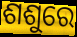
ଶଶୁରେ